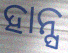
ହାନ୍ସ